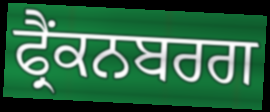
ਫ੍ਰੈਂਕਨਬਰਗ